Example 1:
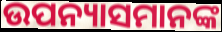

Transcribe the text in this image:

ଉପନ୍ୟାସମାନଙ୍କ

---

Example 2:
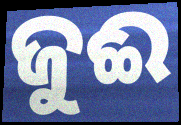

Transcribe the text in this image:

ଜୁଈ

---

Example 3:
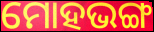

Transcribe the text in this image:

ମୋହଭଙ୍ଗ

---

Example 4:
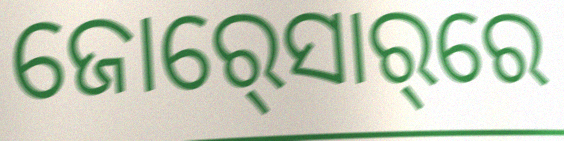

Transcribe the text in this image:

ଜୋର୍‍ସୋର୍‌ରେ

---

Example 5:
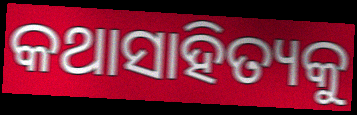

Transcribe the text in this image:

କଥାସାହିତ୍ୟକୁ